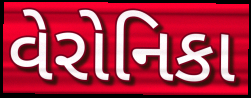
વેરોનિકા